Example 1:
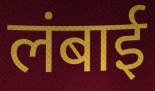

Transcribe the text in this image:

लंबाई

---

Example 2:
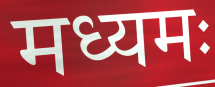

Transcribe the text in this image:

मध्यमः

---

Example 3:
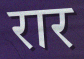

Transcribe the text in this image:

रार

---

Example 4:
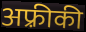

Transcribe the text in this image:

अफ़्रीकी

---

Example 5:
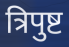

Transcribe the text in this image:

त्रिपुष्ट